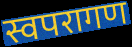
स्वपरागण